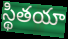
స్థితయా